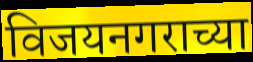
विजयनगराच्या